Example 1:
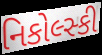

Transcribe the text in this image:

નિકોલ્સ્કી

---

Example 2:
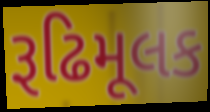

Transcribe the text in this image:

રૂઢિમૂલક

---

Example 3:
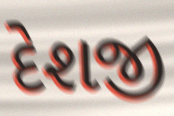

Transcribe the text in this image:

દેશજી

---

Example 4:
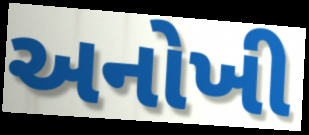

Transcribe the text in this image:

અનોખી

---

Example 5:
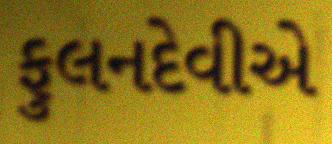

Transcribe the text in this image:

ફુલનદેવીએ